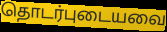
தொடர்புடையவை